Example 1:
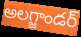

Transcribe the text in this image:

అలగ్జాండర్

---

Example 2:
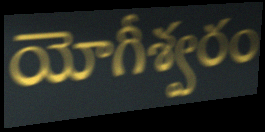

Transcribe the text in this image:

యోగీశ్వరం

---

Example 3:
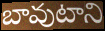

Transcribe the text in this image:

బావుటాని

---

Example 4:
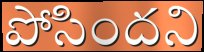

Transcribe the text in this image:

పోసిందని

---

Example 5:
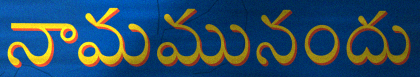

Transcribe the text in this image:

నామమునందు